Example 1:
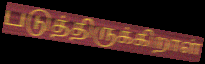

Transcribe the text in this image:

படுத்திருக்கிறாள்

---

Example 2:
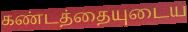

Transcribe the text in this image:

கண்டத்தையுடைய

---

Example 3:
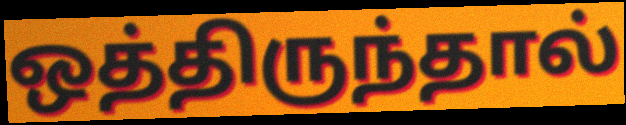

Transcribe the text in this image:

ஒத்திருந்தால்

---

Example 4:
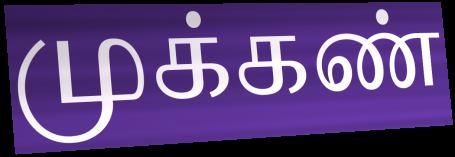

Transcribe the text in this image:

முக்கண்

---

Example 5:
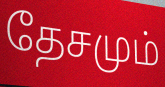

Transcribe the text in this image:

தேசமும்